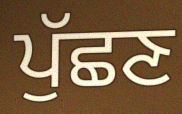
ਪੁੱਛਣ